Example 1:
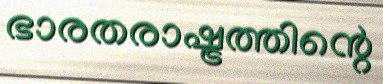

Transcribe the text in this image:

ഭാരതരാഷ്ട്രത്തിന്റെ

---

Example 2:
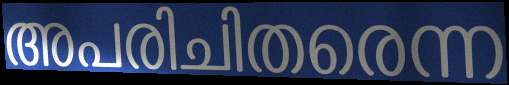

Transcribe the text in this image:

അപരിചിതരെന്ന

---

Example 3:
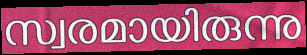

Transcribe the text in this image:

സ്വരമായിരുന്നു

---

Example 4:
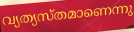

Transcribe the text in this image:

വ്യത്യസ്തമാണെന്നു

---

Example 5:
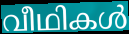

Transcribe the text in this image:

വീഥികൾ